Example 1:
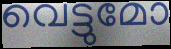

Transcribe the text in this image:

വെട്ടുമോ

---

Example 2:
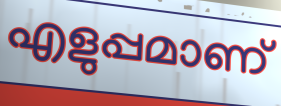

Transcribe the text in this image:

എളുപ്പമാണ്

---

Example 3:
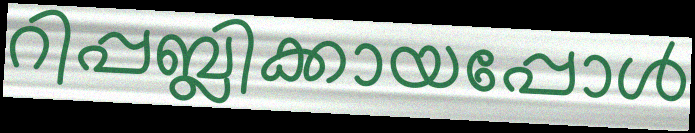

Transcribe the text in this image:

റിപ്പബ്ലിക്കായപ്പോൾ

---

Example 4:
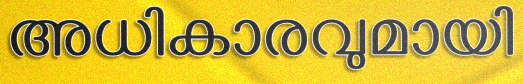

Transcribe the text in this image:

അധികാരവുമായി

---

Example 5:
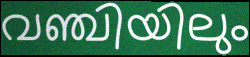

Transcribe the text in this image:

വഞ്ചിയിലും